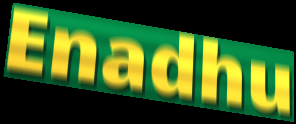
Enadhu